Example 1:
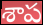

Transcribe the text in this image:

శాప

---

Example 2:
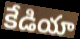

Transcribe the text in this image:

కేడియా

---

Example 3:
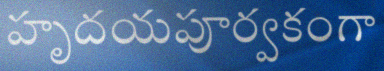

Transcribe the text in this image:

హృదయపూర్వకంగా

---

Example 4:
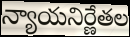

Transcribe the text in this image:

న్యాయనిర్ణేతల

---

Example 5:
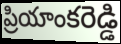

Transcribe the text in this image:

ప్రియాంకరెడ్డి